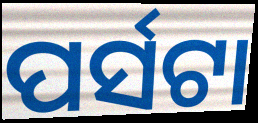
ପର୍ସଟା